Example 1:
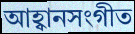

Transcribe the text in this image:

আহ্বানসংগীত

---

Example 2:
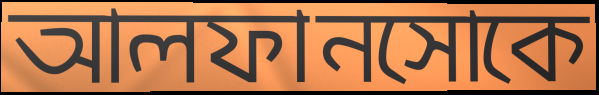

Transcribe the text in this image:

আলফানসোকে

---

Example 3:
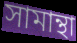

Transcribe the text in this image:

সামান্থা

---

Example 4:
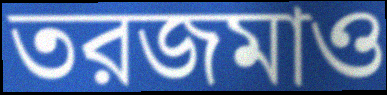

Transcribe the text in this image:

তরজমাও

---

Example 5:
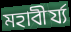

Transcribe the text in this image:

মহাবীর্য্য